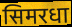
सिमरधा